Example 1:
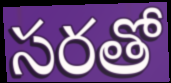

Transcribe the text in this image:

సరతో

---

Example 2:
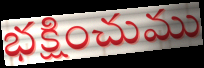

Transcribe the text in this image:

భక్షించుము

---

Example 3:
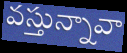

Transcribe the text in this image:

వస్తున్నావా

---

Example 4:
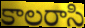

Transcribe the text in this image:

కాలరాసి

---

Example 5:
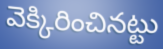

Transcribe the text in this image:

వెక్కిరించినట్టు